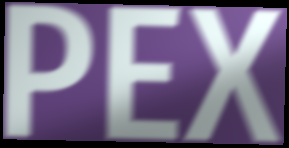
PEX